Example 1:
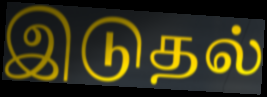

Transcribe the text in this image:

இடுதல்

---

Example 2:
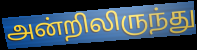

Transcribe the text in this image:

அன்றிலிருந்து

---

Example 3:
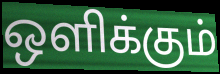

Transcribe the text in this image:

ஒளிக்கும்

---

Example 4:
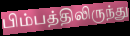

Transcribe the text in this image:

பிம்பத்திலிருந்து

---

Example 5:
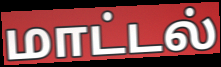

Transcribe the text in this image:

மாட்டல்